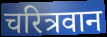
चरित्रवान